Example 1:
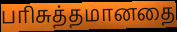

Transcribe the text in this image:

பரிசுத்தமானதை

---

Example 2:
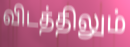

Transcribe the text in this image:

விடத்திலும்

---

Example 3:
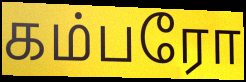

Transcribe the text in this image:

கம்பரோ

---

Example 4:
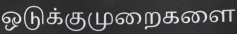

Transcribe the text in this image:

ஒடுக்குமுறைகளை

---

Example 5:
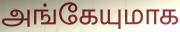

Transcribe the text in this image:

அங்கேயுமாக